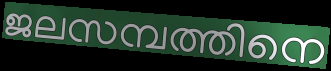
ജലസമ്പത്തിനെ